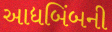
આદ્યબિંબની